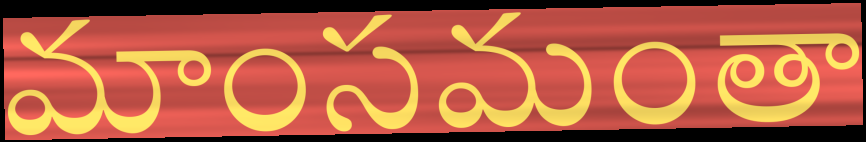
మాంసమంతా